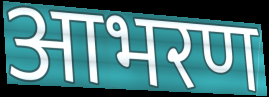
आभरण